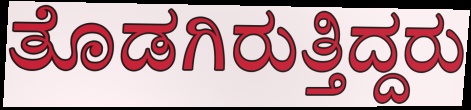
ತೊಡಗಿರುತ್ತಿದ್ದರು